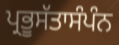
ਪ੍ਰਭੂਸੱਤਾਸੰਪੰਨ